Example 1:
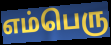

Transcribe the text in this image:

எம்பெரு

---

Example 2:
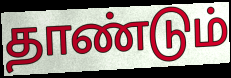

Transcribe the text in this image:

தாண்டும்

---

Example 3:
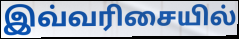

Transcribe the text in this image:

இவ்வரிசையில்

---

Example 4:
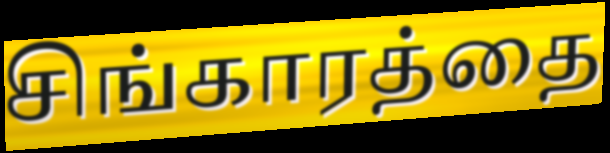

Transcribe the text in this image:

சிங்காரத்தை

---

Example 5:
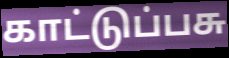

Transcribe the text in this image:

காட்டுப்பசு